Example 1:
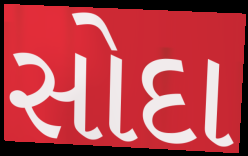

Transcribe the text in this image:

સોદા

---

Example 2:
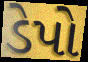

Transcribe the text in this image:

ડેપો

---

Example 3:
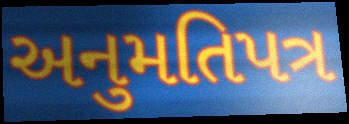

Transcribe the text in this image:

અનુમતિપત્ર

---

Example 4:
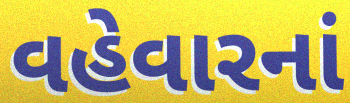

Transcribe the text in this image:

વહેવારનાં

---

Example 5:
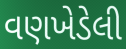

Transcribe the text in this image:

વણખેડેલી